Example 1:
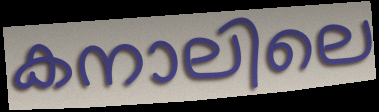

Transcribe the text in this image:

കനാലിലെ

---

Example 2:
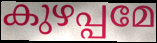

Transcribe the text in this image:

കുഴപ്പമേ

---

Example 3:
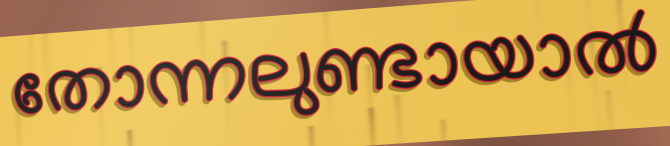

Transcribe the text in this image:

തോന്നലുണ്ടായാൽ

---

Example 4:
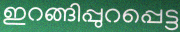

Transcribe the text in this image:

ഇറങ്ങിപ്പുറപ്പെട്ട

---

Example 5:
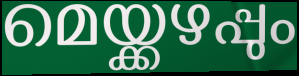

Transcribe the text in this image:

മെയ്ക്കഴപ്പും